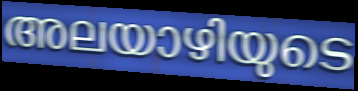
അലയാഴിയുടെ